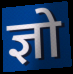
ज्ञो